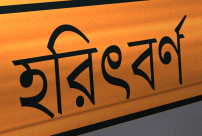
হরিৎবর্ণ